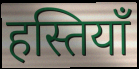
हस्तियॉं